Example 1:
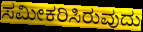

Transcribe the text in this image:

ಸಮೀಕರಿಸಿರುವುದು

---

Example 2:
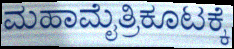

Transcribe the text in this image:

ಮಹಾಮೈತ್ರಿಕೂಟಕ್ಕೆ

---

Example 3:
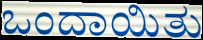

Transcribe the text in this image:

ಒಂದಾಯಿತು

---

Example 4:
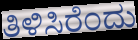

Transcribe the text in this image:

ತಿಳಿಸಿರೆಂದು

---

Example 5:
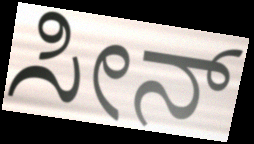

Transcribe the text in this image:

ಸೀನ್